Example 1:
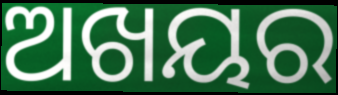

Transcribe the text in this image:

ଅଖୟର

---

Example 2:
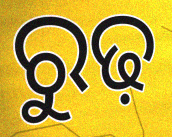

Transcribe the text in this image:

ରୁଢ଼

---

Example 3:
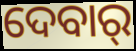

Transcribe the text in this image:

ଦେବାର୍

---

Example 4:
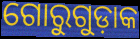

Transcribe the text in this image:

ଗୋରୁଗୁଡ଼ାକ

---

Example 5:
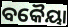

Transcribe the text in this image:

ବକୈୟା